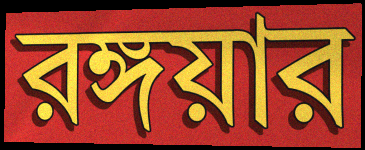
রঙ্গয়ার